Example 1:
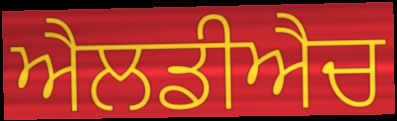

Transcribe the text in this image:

ਐਲਡੀਐਚ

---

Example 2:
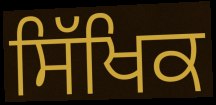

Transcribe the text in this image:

ਸਿੱਖਿਕ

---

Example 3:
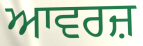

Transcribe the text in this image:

ਆਵਰਜ਼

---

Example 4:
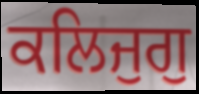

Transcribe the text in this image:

ਕਲਿਜੁਗੁ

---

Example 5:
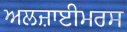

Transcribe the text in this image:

ਅਲਜ਼ਾਈਮਰਸ